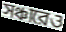
সঞ্চারেও